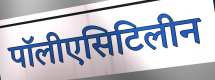
पॉलीएसिटिलीन